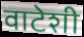
वाटेशी